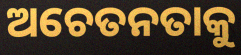
ଅଚେତନତାକୁ